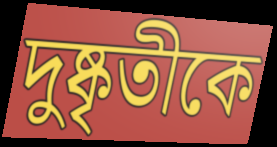
দুষ্কৃতীকে